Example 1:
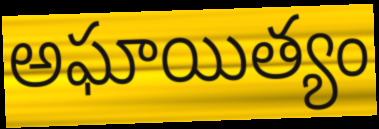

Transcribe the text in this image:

అఘాయిత్యం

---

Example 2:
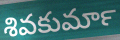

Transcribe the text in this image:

శివకుమార్‍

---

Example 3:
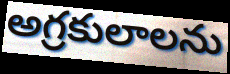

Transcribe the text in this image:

అగ్రకులాలను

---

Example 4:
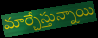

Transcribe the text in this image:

మార్చేస్తున్నాయి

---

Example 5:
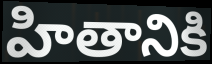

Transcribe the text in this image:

హితానికి